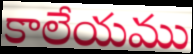
కాలేయము